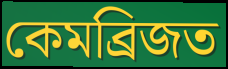
কেমব্ৰিজত